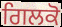
ਗਿਲਕੋ